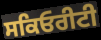
ਸਕਿਓਰੀਟੀ